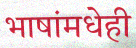
भाषांमधेही